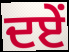
ਦਏਂ